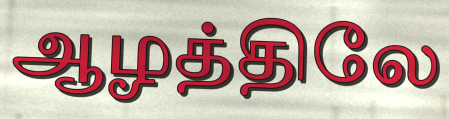
ஆழத்திலே